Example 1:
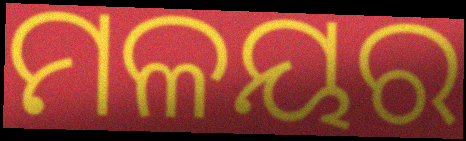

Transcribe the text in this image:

ମଳୟର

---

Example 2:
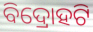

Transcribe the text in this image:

ବିଦ୍ରୋହଟି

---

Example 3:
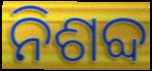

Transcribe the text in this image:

ନିଶବ୍ଦ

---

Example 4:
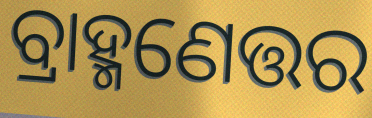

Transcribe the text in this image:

ବ୍ରାହ୍ମଣେତ୍ତର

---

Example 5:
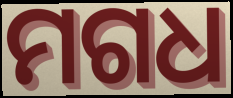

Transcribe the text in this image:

ମଗଧ